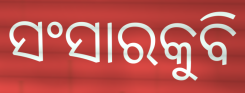
ସଂସାରକୁବି